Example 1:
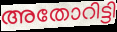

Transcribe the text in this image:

അതോറിട്ടി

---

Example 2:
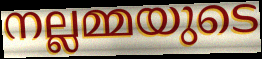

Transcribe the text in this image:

നല്ലമ്മയുടെ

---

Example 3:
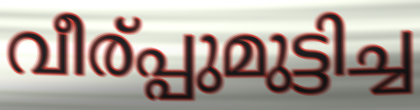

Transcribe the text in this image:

വീര്പ്പുമുട്ടിച്ച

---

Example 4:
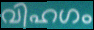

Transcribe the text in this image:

വിഹഗം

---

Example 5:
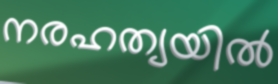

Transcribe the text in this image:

നരഹത്യയിൽ